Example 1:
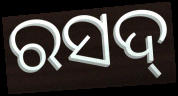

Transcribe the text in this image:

ରସଦ୍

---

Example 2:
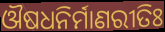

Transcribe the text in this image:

ଔଷଧନିର୍ମାଣରୀତିଃ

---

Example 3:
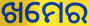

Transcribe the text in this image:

ଖମେର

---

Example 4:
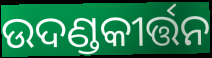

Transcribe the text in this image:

ଉଦଣ୍ଡକୀର୍ତ୍ତନ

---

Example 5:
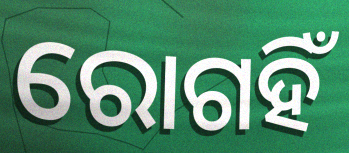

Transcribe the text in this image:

ରୋଗହିଁ